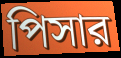
পিসার